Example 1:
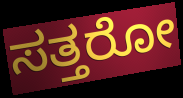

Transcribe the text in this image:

ಸತ್ತರೋ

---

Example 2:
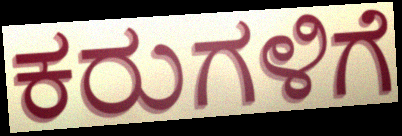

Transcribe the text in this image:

ಕರುಗಳಿಗೆ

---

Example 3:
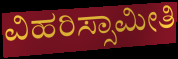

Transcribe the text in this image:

ವಿಹರಿಸ್ಸಾಮೀತಿ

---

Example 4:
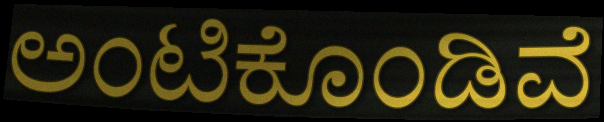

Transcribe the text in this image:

ಅಂಟಿಕೊಂಡಿವೆ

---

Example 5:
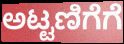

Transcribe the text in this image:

ಅಟ್ಟಣಿಗೆಗೆ